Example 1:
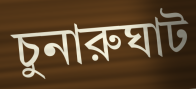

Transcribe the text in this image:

চুনারুঘাট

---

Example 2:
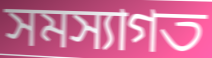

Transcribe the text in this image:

সমস্যাগত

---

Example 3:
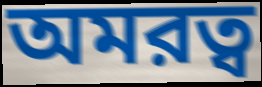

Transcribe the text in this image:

অমরত্ব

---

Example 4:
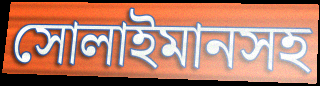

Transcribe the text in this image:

সোলাইমানসহ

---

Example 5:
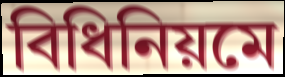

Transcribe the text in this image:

বিধিনিয়মে